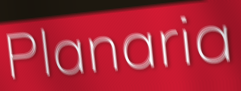
Planaria